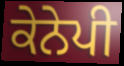
ਕੇਨੇਪੀ